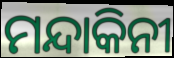
ମନ୍ଦାକିନୀ